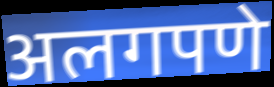
अलगपणे